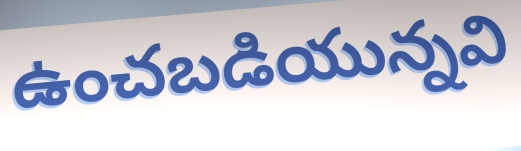
ఉంచబడియున్నవి